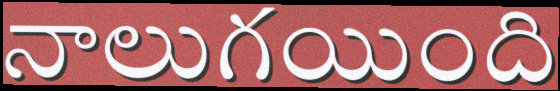
నాలుగయింది